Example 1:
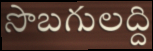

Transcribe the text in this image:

సొబగులద్ది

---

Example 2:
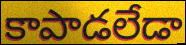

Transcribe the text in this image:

కాపాడలేడా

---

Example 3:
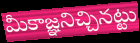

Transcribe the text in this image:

మీకాజ్ఞనిచ్చినట్టు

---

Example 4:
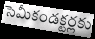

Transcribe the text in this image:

సెమీకండక్టర్లకు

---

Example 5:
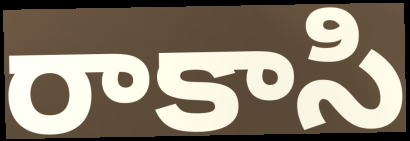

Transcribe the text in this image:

రాకాసి